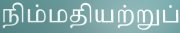
நிம்மதியற்றுப்